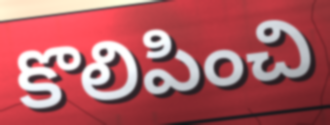
కొలిపించి